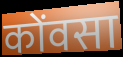
कोंवसा